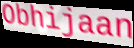
Obhijaan